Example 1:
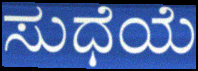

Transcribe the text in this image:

ಸುಧೆಯೆ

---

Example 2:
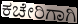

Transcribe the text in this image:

ಕಚೇರಿಗಾಗಿ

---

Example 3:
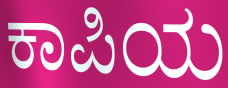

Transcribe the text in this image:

ಕಾಪಿಯ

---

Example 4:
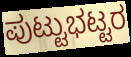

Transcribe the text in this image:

ಪುಟ್ಟುಭಟ್ಟರ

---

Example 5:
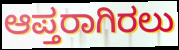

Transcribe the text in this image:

ಆಪ್ತರಾಗಿರಲು